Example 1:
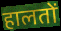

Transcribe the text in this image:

हालतों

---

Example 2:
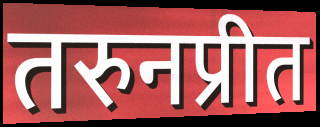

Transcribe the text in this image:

तरुनप्रीत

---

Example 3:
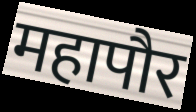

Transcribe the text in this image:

महापौर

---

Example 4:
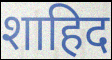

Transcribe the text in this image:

शाहिद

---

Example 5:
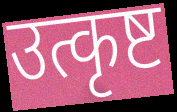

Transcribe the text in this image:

उत्कृष्ट